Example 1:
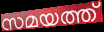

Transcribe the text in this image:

സമയത്ത്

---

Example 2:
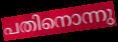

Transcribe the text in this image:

പതിനൊന്നു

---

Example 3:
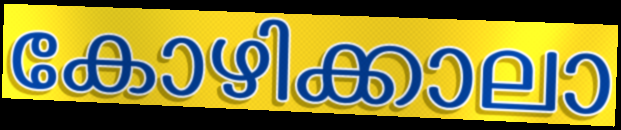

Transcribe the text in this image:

കോഴിക്കാലാ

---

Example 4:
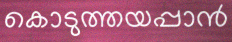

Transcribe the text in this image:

കൊടുത്തയപ്പാൻ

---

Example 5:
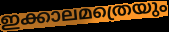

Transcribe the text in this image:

ഇക്കാലമത്രെയും